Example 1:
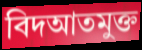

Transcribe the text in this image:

বিদআতমুক্ত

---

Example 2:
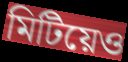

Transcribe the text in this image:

মিটিয়েও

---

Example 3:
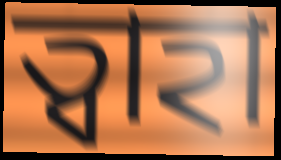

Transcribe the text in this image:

ত্বাহা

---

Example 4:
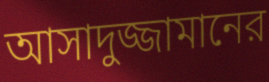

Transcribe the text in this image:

আসাদুজ্জামানের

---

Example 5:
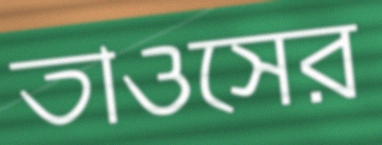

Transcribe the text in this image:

তাওসের